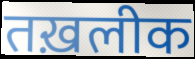
तख़लीक